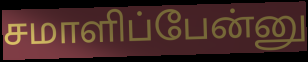
சமாளிப்பேன்னு